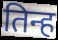
तिन्ह